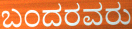
ಬಂದರವರು